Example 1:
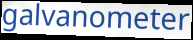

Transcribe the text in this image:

galvanometer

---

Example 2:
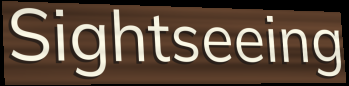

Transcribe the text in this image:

Sightseeing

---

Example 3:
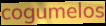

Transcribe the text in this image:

cogumelos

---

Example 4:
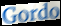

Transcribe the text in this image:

Gordo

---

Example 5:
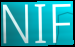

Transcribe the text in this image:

NIF